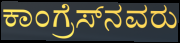
ಕಾಂಗ್ರೆಸ್‌ನವರು